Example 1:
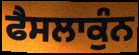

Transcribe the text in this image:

ਫੈਸਲਾਕੁੰਨ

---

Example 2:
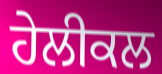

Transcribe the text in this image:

ਹੇਲੀਕਲ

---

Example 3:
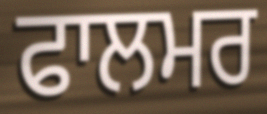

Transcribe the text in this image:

ਫਾਲਮਰ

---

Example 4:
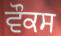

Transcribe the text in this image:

ਵੌਕਸ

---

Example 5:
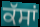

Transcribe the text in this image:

ਕੱਸਾਂ